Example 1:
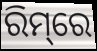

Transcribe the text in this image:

ରିମ୍‌ରେ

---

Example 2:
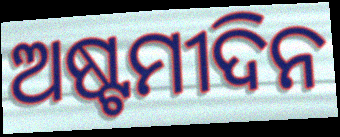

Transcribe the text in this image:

ଅଷ୍ଟମୀଦିନ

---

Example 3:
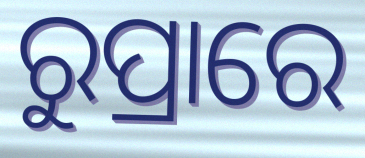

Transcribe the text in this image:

ରୁପ୍ରାରେ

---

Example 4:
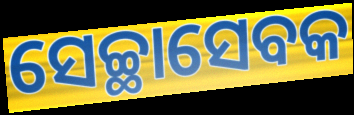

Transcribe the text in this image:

ସେଚ୍ଛାସେବକ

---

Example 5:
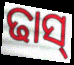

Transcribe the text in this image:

ଢାସ୍